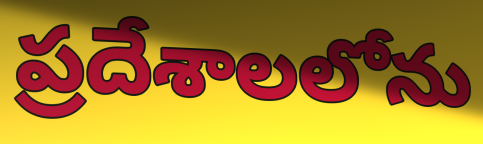
ప్రదేశాలలోను